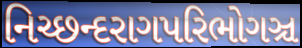
નિચ્છન્દરાગપરિભોગઞ્ચ